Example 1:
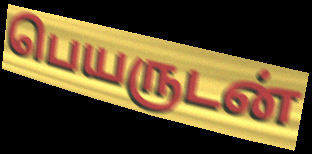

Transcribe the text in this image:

பெயருடன்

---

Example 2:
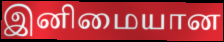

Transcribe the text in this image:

இனிமையான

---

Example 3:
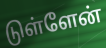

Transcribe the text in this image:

டுள்ளேன்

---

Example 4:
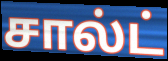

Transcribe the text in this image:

சால்ட்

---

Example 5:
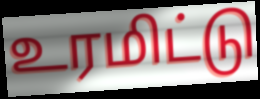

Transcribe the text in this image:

உரமிட்டு